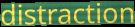
distraction